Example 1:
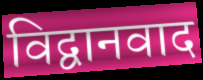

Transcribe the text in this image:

विद्वानवाद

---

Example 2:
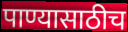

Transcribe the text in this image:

पाण्यासाठीच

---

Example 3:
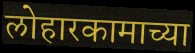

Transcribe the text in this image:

लोहारकामाच्या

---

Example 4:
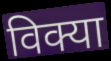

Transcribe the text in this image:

विक्या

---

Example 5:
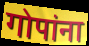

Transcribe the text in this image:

गोपांना